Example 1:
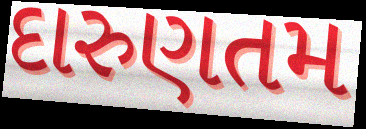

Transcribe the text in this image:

દારુણતમ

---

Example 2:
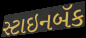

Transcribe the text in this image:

સ્ટાઇનબૅક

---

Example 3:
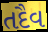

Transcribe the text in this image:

તદૈવ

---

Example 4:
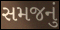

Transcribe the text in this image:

સમજનું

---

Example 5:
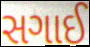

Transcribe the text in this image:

સગાઈ